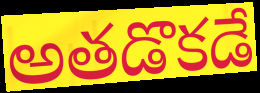
అతడొకడే